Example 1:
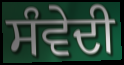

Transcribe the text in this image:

ਸੰਵੇਦੀ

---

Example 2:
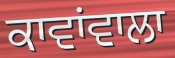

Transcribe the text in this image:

ਕਾਵਾਂਵਾਲਾ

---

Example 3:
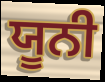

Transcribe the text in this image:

ਯੂਨੀ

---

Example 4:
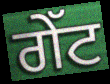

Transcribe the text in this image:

ਗੇੱਟ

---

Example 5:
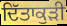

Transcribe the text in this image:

ਦਿੱਤਾਕੁੜੀ